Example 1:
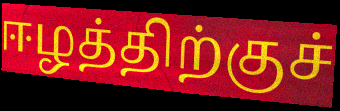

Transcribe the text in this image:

ஈழத்திற்குச்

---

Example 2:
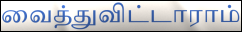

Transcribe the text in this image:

வைத்துவிட்டாராம்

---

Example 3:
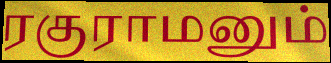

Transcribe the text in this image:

ரகுராமனும்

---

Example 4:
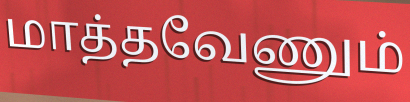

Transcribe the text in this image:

மாத்தவேணும்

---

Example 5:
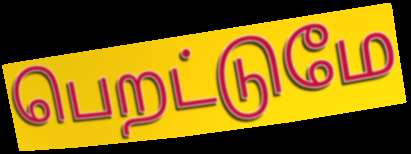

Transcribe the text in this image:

பெறட்டுமே